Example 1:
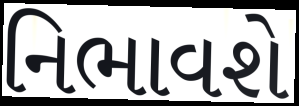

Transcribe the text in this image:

નિભાવશે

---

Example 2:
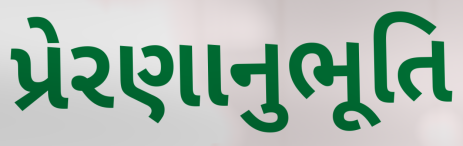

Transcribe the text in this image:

પ્રેરણાનુભૂતિ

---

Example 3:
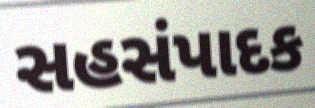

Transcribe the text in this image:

સહસંપાદક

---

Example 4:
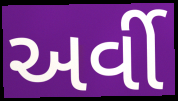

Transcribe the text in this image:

અર્વી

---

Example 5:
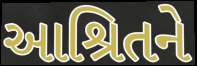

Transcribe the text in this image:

આશ્રિતને